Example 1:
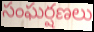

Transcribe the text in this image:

సంఘర్షణలు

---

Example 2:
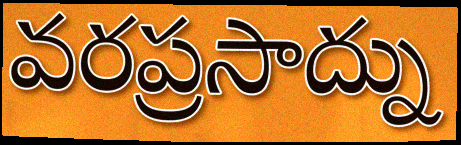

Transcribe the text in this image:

వరప్రసాద్ను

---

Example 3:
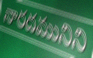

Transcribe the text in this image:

నారదమునిని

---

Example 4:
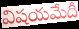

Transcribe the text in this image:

విషయమేదీ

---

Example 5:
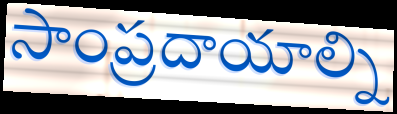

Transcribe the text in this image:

సాంప్రదాయాల్ని